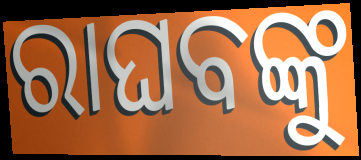
ରାଘବଙ୍କୁ